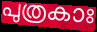
പുത്രകാഃ